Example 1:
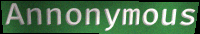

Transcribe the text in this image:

Annonymous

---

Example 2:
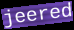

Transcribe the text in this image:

jeered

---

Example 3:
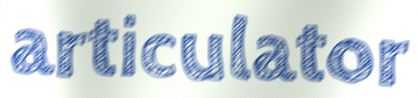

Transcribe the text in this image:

articulator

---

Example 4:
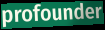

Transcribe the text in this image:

profounder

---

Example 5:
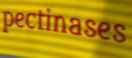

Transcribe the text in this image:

pectinases